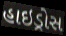
હાઇડ્રોસ